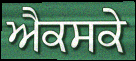
ਐਕਸਕੇ